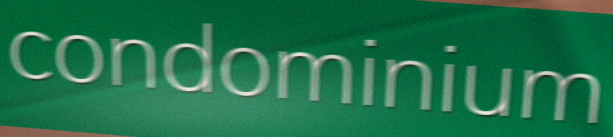
condominium